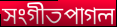
সংগীতপাগল